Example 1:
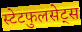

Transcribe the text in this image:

स्टेटफुलसेट्स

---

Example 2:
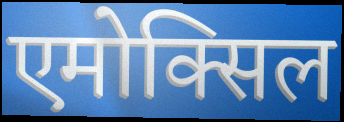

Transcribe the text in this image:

एमोक्सिल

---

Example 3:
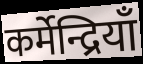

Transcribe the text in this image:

कर्मेन्द्रियाँ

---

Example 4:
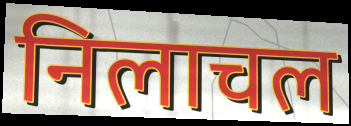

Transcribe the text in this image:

निलाचल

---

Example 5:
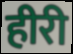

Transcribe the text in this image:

हीरी